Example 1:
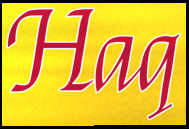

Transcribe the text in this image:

Haq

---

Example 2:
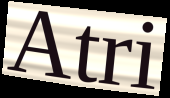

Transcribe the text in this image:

Atri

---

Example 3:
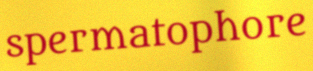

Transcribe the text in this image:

spermatophore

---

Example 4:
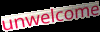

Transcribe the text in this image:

unwelcome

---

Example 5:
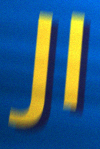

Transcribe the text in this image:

Jl